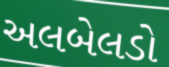
અલબેલડો